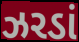
ઝરડાં